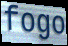
fogo